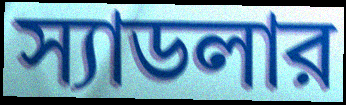
স্যাডলার